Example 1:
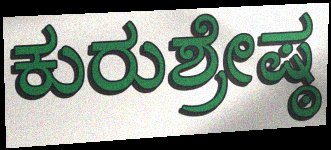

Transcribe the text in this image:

ಕುರುಶ್ರೇಷ್ಠ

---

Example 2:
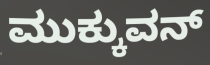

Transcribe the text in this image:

ಮುಕ್ಕುವನ್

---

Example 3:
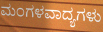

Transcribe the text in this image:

ಮಂಗಳವಾದ್ಯಗಳು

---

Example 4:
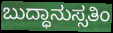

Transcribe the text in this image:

ಬುದ್ಧಾನುಸ್ಸತಿಂ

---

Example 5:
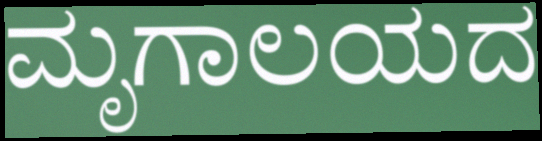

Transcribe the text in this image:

ಮೃಗಾಲಯದ